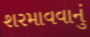
શરમાવવાનું